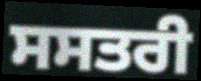
ਸਸਤਰੀ